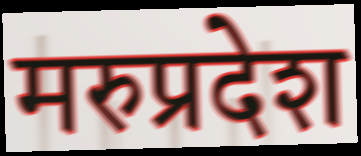
मरुप्रदेश